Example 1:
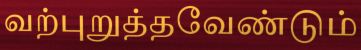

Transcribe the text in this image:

வற்புறுத்தவேண்டும்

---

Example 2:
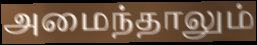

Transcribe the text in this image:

அமைந்தாலும்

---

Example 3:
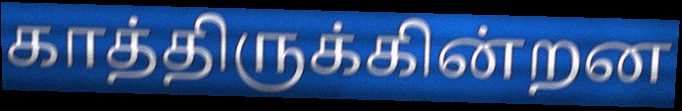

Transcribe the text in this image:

காத்திருக்கின்றன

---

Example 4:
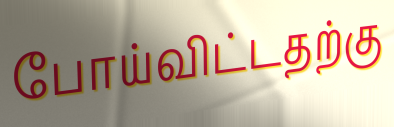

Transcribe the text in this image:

போய்விட்டதற்கு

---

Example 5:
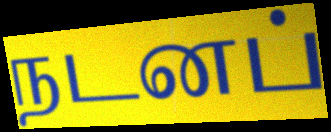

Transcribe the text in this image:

நடனப்